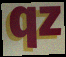
qz